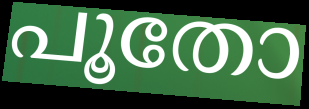
പൂതോ